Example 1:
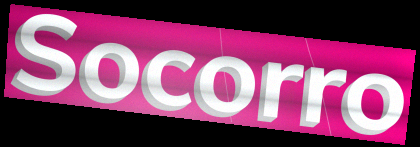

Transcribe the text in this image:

Socorro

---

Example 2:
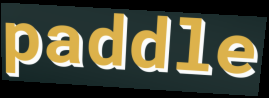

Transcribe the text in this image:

paddle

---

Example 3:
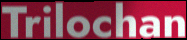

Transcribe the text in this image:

Trilochan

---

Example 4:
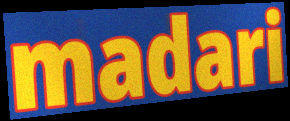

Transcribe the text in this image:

madari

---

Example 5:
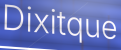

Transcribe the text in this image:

Dixitque